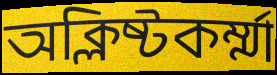
অক্লিষ্টকর্ম্মা